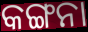
କଙ୍ଗନା